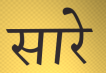
सारे